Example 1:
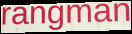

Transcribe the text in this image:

rangman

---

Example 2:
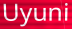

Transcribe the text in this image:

Uyuni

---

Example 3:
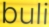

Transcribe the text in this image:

buli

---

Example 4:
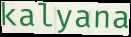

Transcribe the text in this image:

kalyana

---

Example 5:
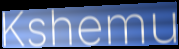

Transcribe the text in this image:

Kshemu